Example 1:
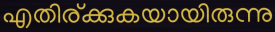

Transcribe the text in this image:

എതിര്ക്കുകയായിരുന്നു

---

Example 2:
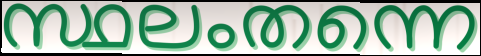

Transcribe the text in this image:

സ്ഥലംതന്നെ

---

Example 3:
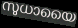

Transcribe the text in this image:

സുധായൈ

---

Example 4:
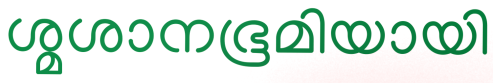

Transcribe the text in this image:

ശ്മശാനഭൂമിയായി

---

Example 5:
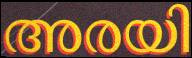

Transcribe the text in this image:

അരയി